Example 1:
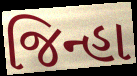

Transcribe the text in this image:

જિન્હા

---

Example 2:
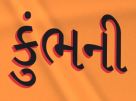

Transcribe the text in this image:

કુંભની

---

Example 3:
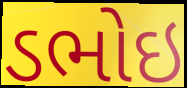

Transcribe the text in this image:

ડભોઇ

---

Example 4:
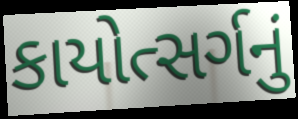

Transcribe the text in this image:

કાયોત્સર્ગનું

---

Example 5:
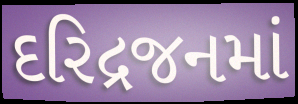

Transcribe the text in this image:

દરિદ્રજનમાં